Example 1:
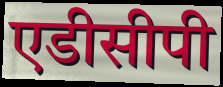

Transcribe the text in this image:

एडीसीपी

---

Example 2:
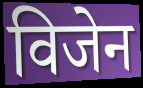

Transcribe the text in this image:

विजेन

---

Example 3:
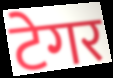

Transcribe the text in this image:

टेगर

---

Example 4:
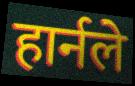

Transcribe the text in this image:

हार्नले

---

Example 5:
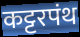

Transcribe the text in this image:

कट्टरपंथ